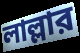
লাল্লার